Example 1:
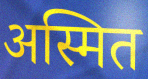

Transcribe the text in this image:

अस्मित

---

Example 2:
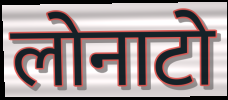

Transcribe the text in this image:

लोनाटो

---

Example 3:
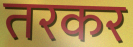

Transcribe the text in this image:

तरकर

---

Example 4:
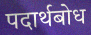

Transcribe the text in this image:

पदार्थबोध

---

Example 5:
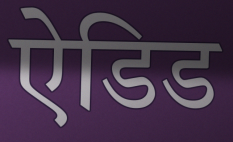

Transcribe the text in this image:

ऐडिड